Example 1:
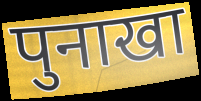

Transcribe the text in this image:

पुनाखा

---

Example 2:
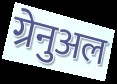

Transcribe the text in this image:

ग्रेनुअल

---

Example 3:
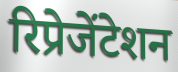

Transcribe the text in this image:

रिप्रेजेंटेशन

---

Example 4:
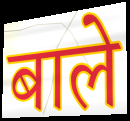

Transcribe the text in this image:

बाले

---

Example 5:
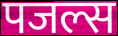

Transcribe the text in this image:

पजल्स